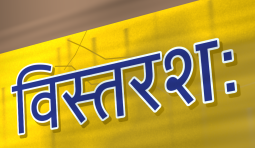
विस्तरशः